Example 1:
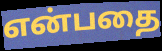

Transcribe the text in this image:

என்பதை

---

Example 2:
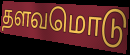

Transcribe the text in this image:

தளவமொடு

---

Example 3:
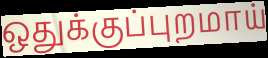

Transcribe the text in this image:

ஒதுக்குப்புறமாய்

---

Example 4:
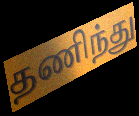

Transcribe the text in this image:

தணிந்து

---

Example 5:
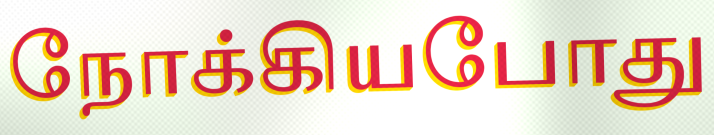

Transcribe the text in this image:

நோக்கியபோது